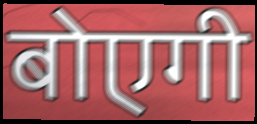
बोएगी